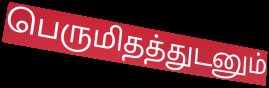
பெருமிதத்துடனும்